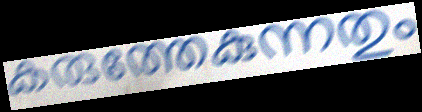
കരുത്തേകുന്നതും